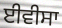
ਈਵੀਸਾ